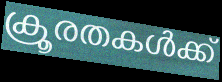
ക്രൂരതകൾക്ക്